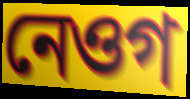
নেওগ